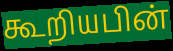
கூறியபின்